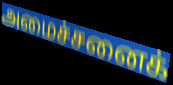
அமைச்சனைக்